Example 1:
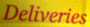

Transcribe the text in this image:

Deliveries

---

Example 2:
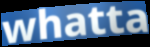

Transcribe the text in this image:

whatta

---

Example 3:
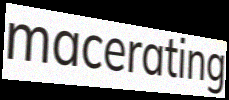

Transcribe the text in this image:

macerating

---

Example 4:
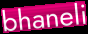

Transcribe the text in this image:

bhaneli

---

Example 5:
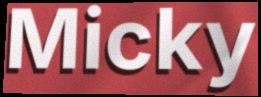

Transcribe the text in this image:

Micky